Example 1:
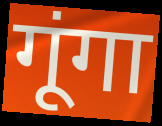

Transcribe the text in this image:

गूंगा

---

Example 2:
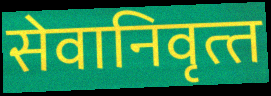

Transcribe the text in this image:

सेवानिवृत्‍त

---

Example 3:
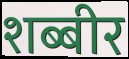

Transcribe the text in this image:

शब्बीर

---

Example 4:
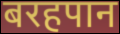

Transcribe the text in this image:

बरहपान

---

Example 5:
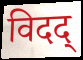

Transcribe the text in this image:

विदद्